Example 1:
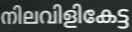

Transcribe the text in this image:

നിലവിളികേട്ട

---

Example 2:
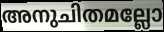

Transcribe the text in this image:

അനുചിതമല്ലോ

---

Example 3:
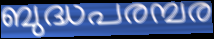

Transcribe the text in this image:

ബുദ്ധപരമ്പര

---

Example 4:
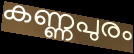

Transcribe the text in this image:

കണ്ണപുരം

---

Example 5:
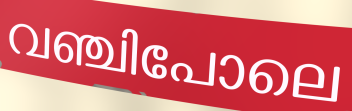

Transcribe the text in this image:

വഞ്ചിപോലെ